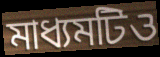
মাধ্যমটিও